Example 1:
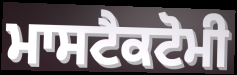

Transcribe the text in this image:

ਮਾਸਟੈਕਟੋਮੀ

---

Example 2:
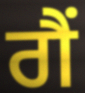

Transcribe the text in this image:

ਗੈਂ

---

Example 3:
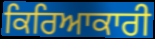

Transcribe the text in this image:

ਕਿਰਿਆਕਾਰੀ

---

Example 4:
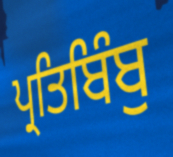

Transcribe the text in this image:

ਪ੍ਰਤਿਬਿੰਬੁ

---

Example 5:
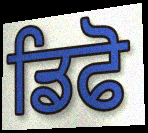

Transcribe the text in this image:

ਡਿਫੋ